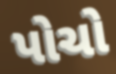
પોચો